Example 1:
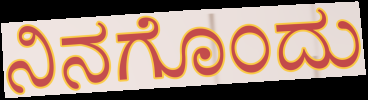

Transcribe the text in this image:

ನಿನಗೊಂದು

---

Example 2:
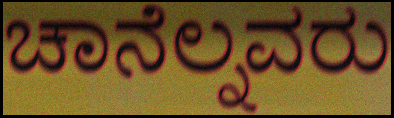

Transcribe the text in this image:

ಚಾನೆಲ್ನವರು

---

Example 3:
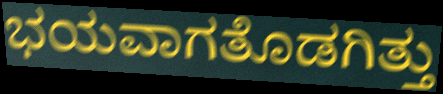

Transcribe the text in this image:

ಭಯವಾಗತೊಡಗಿತ್ತು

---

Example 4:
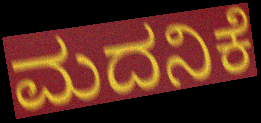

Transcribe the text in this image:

ಮದನಿಕೆ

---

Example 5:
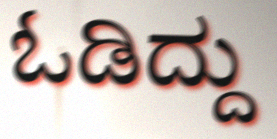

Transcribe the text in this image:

ಓಡಿದ್ದು